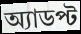
অ্যাডপ্ট